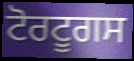
ਟੋਰਟੂਗਸ